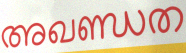
അഖണ്ഡത